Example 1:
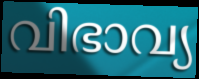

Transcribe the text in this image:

വിഭാവ്യ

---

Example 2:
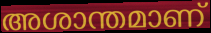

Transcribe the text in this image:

അശാന്തമാണ്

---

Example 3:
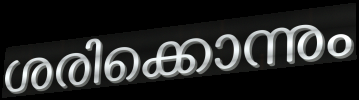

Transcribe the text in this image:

ശരിക്കൊന്നും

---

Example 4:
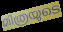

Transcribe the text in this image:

മിത്രയുടെ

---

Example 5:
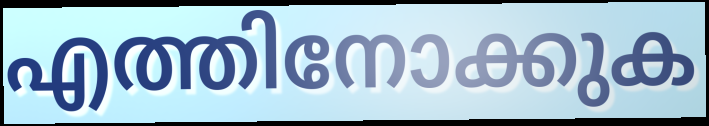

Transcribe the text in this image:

എത്തിനോക്കുക